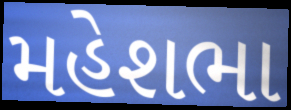
મહેશભા